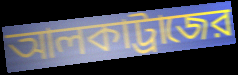
আলকাট্রাজের